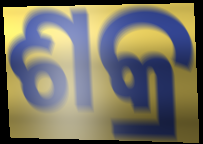
ଶକ୍ର